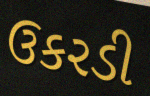
ઉકરડી